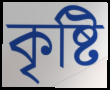
কৃষ্টি